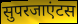
सुपरजाएंटस